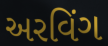
અરવિંગ